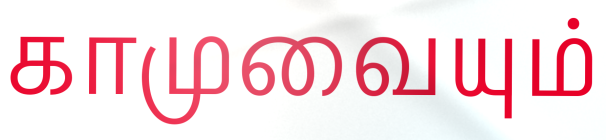
காமுவையும்